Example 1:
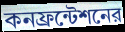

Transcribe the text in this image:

কনফ্রন্টেশনের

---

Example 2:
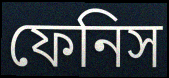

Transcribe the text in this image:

ফেনিস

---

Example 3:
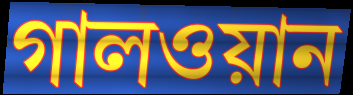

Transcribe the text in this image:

গালওয়ান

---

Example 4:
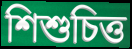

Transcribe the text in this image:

শিশুচিত্ত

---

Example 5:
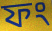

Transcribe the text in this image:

ফং